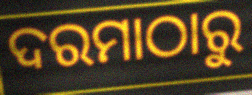
ଦରମାଠାରୁ